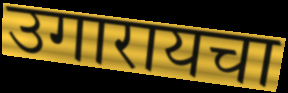
उगारायचा